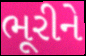
ભૂરીને